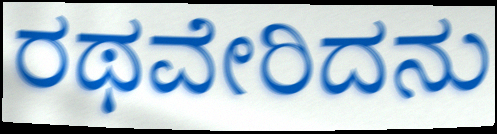
ರಥವೇರಿದನು